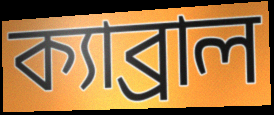
ক্যাব্রাল